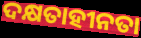
ଦକ୍ଷତାହୀନତା